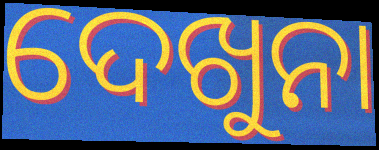
ଦେଖୁନା